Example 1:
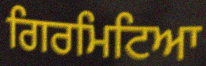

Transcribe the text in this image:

ਗਿਰਮਿਟਿਆ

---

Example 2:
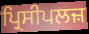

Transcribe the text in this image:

ਪ੍ਰਿਸੀਪਲਜ਼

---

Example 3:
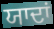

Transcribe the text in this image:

ਯਾਦਾਂ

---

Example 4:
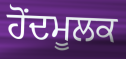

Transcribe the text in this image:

ਹੋਂਦਮੂਲਕ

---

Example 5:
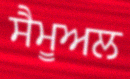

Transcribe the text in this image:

ਸੈਮੂਅਲ